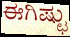
ಈಗಿಷ್ಟು